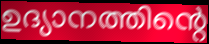
ഉദ്യാനത്തിന്റെ